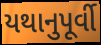
યથાનુપૂર્વી